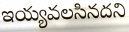
ఇయ్యవలసినదని